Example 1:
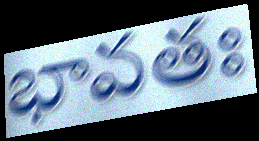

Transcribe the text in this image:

భావతః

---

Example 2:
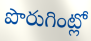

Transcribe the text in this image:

పొరుగింట్లో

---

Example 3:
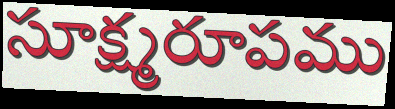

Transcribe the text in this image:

సూక్ష్మరూపము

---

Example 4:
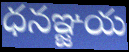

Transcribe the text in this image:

ధనఞ్జయ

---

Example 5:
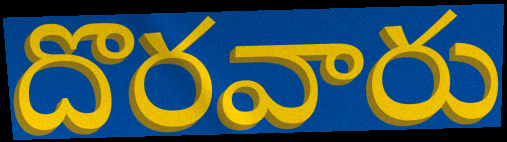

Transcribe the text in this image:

దొరవారు